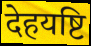
देहयष्टि